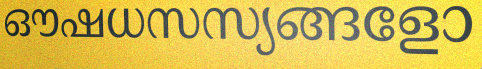
ഔഷധസസ്യങ്ങളോ